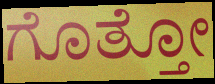
ಗೊತ್ತೋ